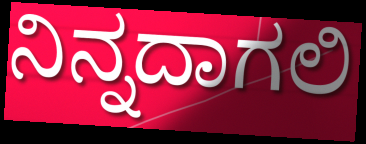
ನಿನ್ನದಾಗಲಿ